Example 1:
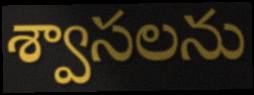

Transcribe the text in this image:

శ్వాసలను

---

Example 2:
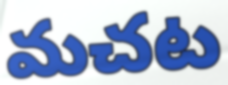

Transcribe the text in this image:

మచట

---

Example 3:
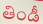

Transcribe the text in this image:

తిండీ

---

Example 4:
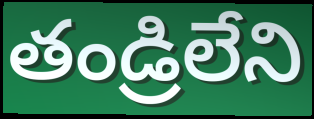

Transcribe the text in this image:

తండ్రిలేని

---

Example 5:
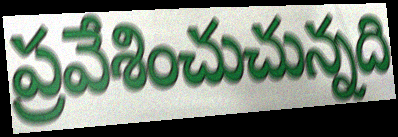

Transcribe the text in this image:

ప్రవేశించుచున్నది